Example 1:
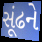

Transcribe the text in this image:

સૂંઢને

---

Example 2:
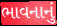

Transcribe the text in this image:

ભાવનાનું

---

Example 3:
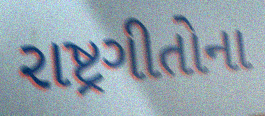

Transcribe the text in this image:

રાષ્ટ્રગીતોના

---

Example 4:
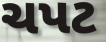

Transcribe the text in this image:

ચપટ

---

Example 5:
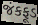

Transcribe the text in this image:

જંકફૂડ